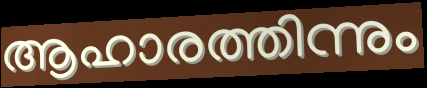
ആഹാരത്തിന്നും